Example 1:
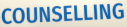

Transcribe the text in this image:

COUNSELLING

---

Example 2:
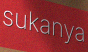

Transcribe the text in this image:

sukanya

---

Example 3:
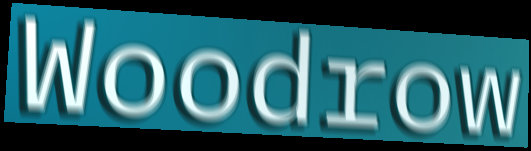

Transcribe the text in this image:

Woodrow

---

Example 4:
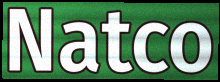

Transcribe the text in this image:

Natco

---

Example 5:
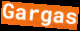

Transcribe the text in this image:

Gargas